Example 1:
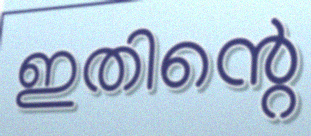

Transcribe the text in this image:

ഇതിന്റെ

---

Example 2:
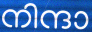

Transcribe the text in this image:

നിന്ദാ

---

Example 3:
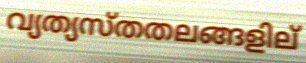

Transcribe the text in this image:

വ്യത്യസ്തതലങ്ങളില്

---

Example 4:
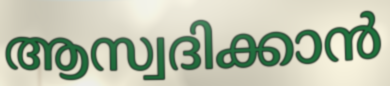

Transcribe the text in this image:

ആസ്വദിക്കാൻ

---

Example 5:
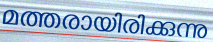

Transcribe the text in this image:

മത്തരായിരിക്കുന്നു